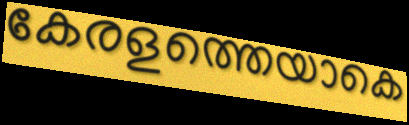
കേരളത്തെയാകെ